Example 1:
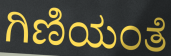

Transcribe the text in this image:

ಗಿಣಿಯಂತೆ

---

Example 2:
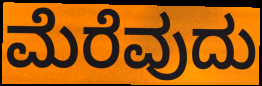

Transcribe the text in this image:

ಮೆರೆವುದು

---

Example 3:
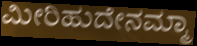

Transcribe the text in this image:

ಮೀರಿಹುದೇನಮ್ಮಾ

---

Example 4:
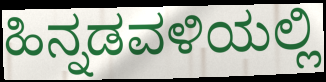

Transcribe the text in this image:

ಹಿನ್ನಡವಳಿಯಲ್ಲಿ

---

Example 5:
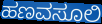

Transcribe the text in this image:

ಹಣವಸೂಲಿ